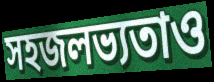
সহজলভ্যতাও